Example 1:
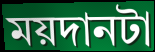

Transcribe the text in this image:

ময়দানটা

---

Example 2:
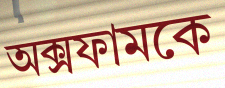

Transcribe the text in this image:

অক্সফামকে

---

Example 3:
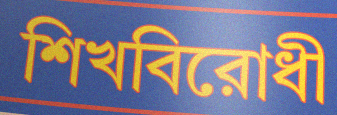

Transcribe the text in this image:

শিখবিরোধী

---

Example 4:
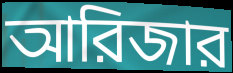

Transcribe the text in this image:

আরিজার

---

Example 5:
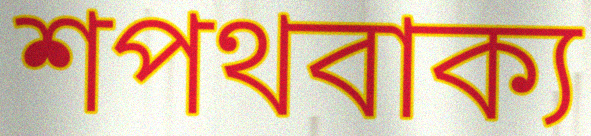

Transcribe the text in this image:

শপথবাক্য